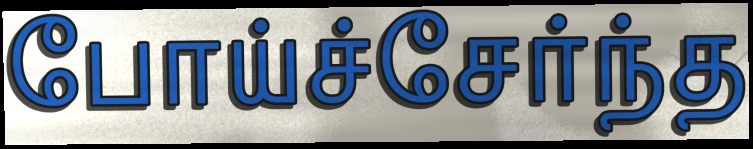
போய்ச்சேர்ந்த